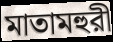
মাতামহুরী